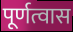
पूर्णत्वास